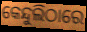
କେନ୍ଦୁଲିଠାରେ